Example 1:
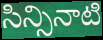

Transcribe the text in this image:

సిన్సినాటి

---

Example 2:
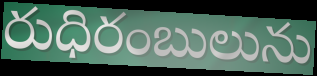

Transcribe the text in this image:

రుధిరంబులును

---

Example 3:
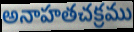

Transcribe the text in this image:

అనాహతచక్రము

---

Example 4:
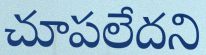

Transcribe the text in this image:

చూపలేదని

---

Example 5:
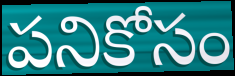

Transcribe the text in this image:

పనికోసం